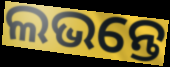
ଲଭନ୍ତେ